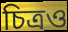
চিত্রও